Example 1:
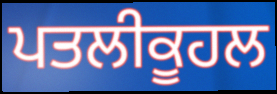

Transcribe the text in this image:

ਪਤਲੀਕੂਹਲ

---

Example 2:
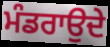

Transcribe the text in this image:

ਮੰਡਰਾਉਦੇ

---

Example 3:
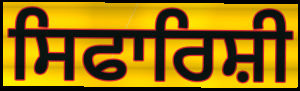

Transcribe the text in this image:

ਸਿਫਾਰਿਸ਼ੀ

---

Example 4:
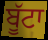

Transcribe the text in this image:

ਬੂੱਟਾ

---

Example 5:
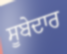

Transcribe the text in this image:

ਸੂਬੇਦਾਰ